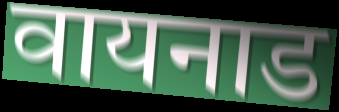
वायनाड